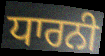
ਧਾਰਨੀ